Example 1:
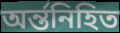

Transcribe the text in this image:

অর্ন্তনিহিত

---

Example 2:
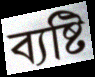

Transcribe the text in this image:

ব্যষ্টি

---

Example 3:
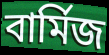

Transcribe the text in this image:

বার্মিজ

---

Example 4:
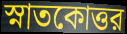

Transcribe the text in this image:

স্নাতকোত্তর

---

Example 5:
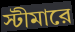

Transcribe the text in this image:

স্টীমারে